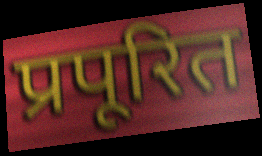
प्रपूरित